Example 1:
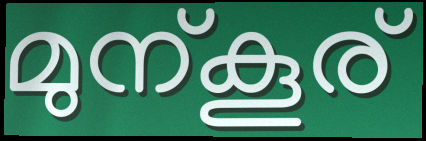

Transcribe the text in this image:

മുന്കൂര്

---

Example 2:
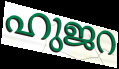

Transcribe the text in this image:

ഹുജറ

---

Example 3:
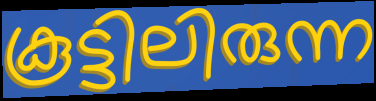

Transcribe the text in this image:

കൂട്ടിലിരുന്ന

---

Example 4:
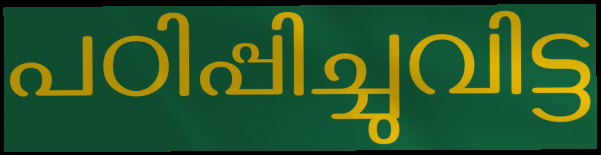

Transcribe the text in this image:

പഠിപ്പിച്ചുവിട്ട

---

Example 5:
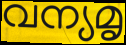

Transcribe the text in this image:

വന്യമൃ